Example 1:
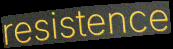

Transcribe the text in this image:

resistence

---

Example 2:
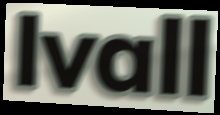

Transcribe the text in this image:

Ivall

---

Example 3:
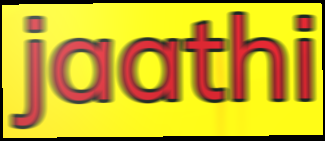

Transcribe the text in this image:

jaathi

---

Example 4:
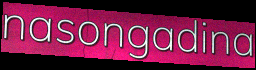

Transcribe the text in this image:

nasongadina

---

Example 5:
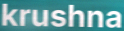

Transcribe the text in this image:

krushna